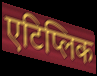
एटिप्लिक